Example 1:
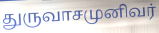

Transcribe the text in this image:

துருவாசமுனிவர்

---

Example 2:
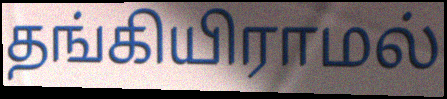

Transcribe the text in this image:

தங்கியிராமல்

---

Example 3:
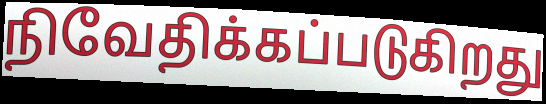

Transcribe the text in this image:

நிவேதிக்கப்படுகிறது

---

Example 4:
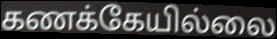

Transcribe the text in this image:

கணக்கேயில்லை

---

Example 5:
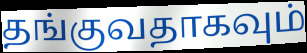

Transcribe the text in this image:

தங்குவதாகவும்